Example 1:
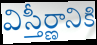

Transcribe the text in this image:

విస్తీర్ణానికి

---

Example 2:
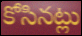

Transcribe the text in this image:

కోసినట్లు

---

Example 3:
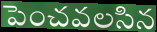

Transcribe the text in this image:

పెంచవలసిన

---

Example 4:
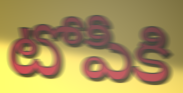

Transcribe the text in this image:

టోపీకి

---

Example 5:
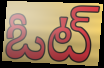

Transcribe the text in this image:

ఓట్